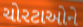
ચોરટાઓને